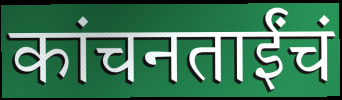
कांचनताईंचं